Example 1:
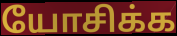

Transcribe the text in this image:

யோசிக்க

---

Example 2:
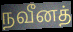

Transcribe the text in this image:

நவீனத்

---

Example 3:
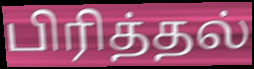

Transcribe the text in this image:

பிரித்தல்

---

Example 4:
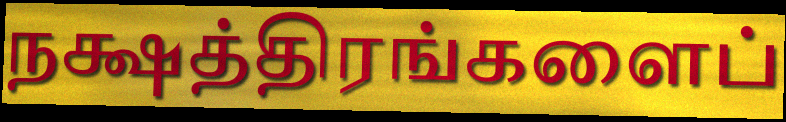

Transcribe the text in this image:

நக்ஷத்திரங்களைப்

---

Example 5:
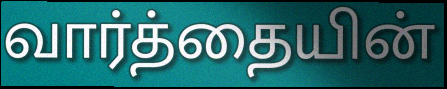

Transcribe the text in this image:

வார்த்தையின்